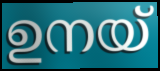
ഉനയ്